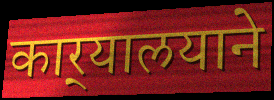
कार्यालयाने